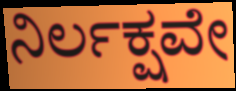
ನಿರ್ಲಕ್ಷವೇ